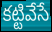
కట్టివేసే